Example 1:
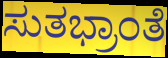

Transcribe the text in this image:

ಸುತಭ್ರಾಂತೆ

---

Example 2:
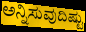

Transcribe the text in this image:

ಅನ್ನಿಸುವುದಿಷ್ಟು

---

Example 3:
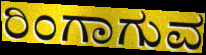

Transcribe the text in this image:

ರಿಂಗಾಗುವ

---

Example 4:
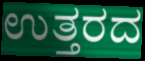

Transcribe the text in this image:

ಉತ್ತರದ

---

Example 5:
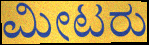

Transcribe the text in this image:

ಮೀಟರು